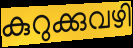
കുറുക്കുവഴി